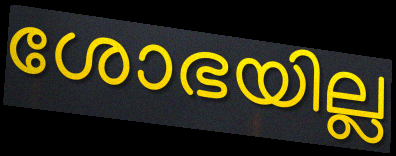
ശോഭയില്ല